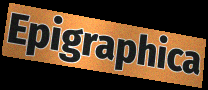
Epigraphica